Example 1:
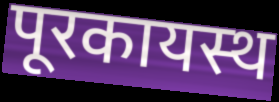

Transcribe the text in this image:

पूरकायस्थ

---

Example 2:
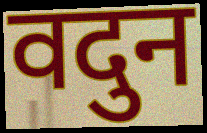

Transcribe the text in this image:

वदुन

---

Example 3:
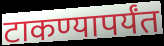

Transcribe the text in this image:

टाकण्यापर्यंत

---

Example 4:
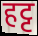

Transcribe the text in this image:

हट्ट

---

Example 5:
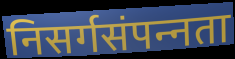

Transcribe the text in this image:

निसर्गसंपन्नता